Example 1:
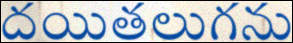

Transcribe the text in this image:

దయితలుగను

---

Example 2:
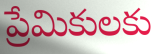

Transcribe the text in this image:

ప్రేమికులకు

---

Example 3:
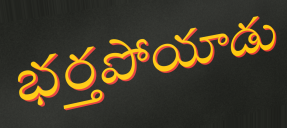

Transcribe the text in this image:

భర్తపోయాడు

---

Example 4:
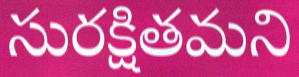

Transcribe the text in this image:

సురక్షితమని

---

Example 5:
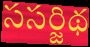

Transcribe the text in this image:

ససర్జిథ